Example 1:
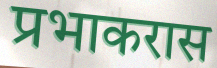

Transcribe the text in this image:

प्रभाकरास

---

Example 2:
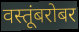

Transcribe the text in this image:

वस्तूंबरोबर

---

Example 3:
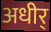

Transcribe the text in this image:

अधीर्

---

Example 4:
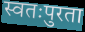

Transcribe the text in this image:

स्वतःपुरता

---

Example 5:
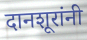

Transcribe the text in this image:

दानशूरांनी